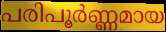
പരിപൂർണ്ണമായ